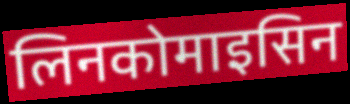
लिनकोमाइसिन